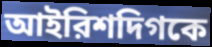
আইরিশদিগকে